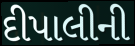
દીપાલીની